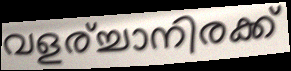
വളര്ച്ചാനിരക്ക്